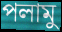
পলামু